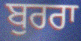
ਬੁਰਰਾ